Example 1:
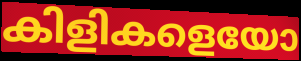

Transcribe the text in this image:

കിളികളെയോ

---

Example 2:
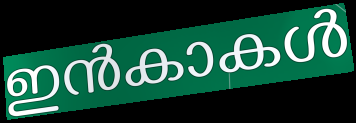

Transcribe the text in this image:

ഇൻകാകൾ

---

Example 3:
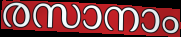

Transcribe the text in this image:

രസാനാം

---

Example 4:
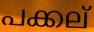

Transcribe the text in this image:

പക്കല്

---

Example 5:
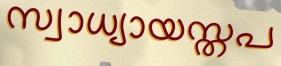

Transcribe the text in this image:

സ്വാധ്യായസ്തപ